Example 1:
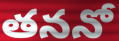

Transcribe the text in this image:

తననో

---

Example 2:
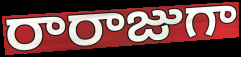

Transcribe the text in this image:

రారాజుగా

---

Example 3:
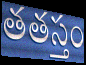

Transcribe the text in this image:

తతస్తం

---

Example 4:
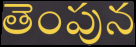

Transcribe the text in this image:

తెంపున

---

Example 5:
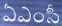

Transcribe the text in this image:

ఏఎంసీ